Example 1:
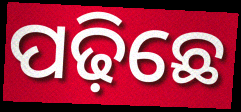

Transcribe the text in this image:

ପଢ଼ିଛେ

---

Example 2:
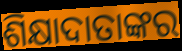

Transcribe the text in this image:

ଶିକ୍ଷାଦାତାଙ୍କର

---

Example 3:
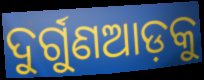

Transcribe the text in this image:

ଦୁର୍ଗୁଣଆଡ଼କୁ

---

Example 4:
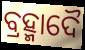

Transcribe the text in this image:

ବ୍ରହ୍ମାଦୈ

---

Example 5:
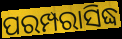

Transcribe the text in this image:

ପରମ୍ପରାସିଦ୍ଧ